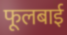
फूलबाई